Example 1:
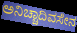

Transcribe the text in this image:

ಅನಿಚ್ಚಾದಿವಸೇನ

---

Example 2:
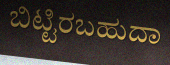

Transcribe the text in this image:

ಬಿಟ್ಟಿರಬಹುದಾ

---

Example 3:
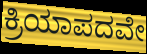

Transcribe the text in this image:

ಕ್ರಿಯಾಪದವೇ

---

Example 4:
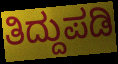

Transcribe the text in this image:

ತಿದ್ದುಪಡಿ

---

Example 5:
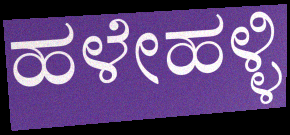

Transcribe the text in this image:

ಹಳೇಹಳ್ಳಿ